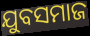
ଯୁବସମାଜ